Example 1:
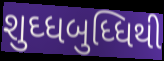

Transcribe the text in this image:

શુઘ્ધબુધ્ધિથી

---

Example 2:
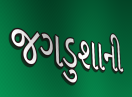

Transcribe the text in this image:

જગડુશાની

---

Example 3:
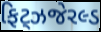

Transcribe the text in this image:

ફિટ્ઝજેરલ્ડ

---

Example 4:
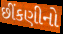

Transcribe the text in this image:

છીંકણીનો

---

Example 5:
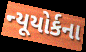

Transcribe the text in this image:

ન્યૂયોર્કના